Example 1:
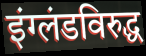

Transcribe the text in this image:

इंग्लंडविरुद्ध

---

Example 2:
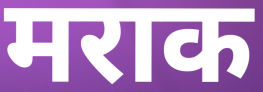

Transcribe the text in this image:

मराक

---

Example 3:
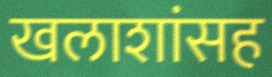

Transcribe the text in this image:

खलाशांसह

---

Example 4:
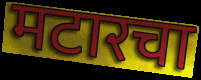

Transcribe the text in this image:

मटारचा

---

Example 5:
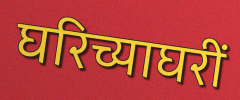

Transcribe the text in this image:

घरिच्याघरीं